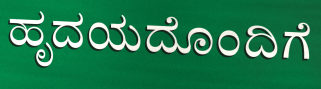
ಹೃದಯದೊಂದಿಗೆ